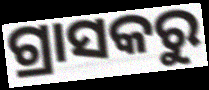
ଗ୍ରାସକରୁ